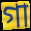
গা